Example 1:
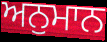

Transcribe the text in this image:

ਅਨੁਮਾਨ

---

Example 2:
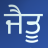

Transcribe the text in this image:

ਜੈਤੂ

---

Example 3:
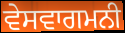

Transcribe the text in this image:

ਵੇਸਵਾਗਮਨੀ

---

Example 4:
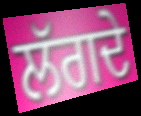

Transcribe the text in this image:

ਲੱਗਦੇ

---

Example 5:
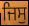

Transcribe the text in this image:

ਜਿਸੁ